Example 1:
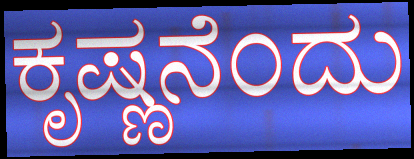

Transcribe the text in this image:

ಕೃಷ್ಣನೆಂದು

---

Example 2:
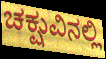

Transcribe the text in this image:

ಚಕ್ಷುವಿನಲ್ಲಿ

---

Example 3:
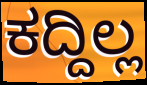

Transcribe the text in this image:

ಕದ್ದಿಲ್ಲ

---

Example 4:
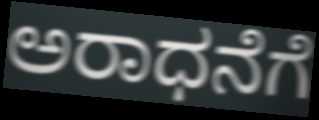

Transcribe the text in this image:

ಅರಾಧನೆಗೆ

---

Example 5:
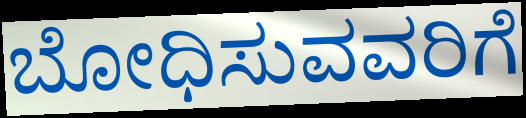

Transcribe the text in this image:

ಬೋಧಿಸುವವರಿಗೆ